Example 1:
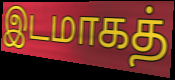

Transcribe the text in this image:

இடமாகத்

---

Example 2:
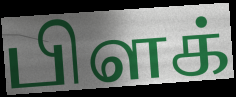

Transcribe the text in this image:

பிளக்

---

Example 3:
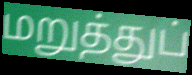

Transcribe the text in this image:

மறுத்துப்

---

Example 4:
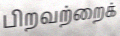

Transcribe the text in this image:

பிறவற்றைக்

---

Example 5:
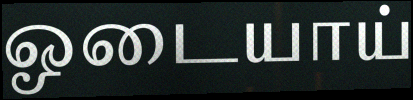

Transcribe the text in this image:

ஓடையாய்